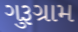
ગુરૂગ્રામ